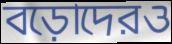
বড়োদেরও